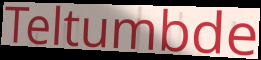
Teltumbde